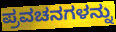
ಪ್ರವಚನಗಳನ್ನು